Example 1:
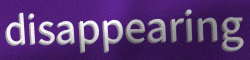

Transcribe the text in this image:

disappearing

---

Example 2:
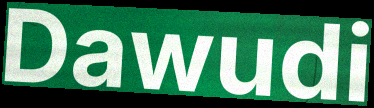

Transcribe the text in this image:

Dawudi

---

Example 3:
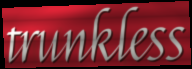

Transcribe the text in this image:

trunkless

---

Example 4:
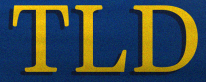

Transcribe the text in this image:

TLD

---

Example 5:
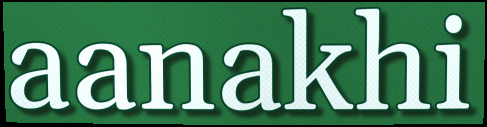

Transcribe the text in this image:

aanakhi